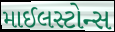
માઈલસ્ટોન્સ